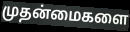
முதன்மைகளை